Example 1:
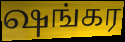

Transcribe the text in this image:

ஷங்கர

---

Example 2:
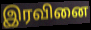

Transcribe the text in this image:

இரவினை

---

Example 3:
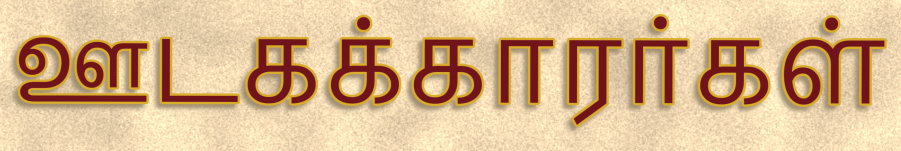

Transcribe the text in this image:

ஊடகக்காரர்கள்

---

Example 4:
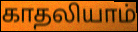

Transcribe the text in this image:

காதலியாம்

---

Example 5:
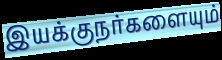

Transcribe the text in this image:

இயக்குநர்களையும்